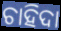
ଚାହିଦା